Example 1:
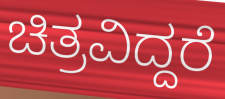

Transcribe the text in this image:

ಚಿತ್ರವಿದ್ದರೆ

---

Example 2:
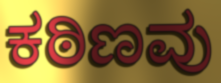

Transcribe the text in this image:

ಕಠಿಣವು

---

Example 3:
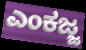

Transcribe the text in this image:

ಎಂಕಜ್ಜ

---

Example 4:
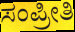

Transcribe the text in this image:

ಸಂಪ್ರೀತಿ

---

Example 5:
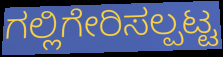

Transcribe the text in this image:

ಗಲ್ಲಿಗೇರಿಸಲ್ಪಟ್ಟ